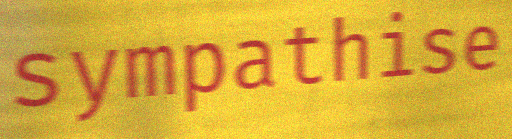
sympathise